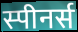
स्पीनर्स